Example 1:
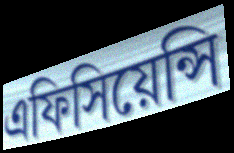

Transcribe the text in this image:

এফিসিয়েন্সি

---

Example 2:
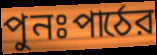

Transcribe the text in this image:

পুনঃপাঠের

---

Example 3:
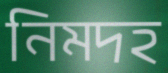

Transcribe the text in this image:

নিমদহ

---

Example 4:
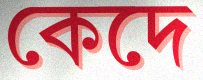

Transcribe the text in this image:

কেদে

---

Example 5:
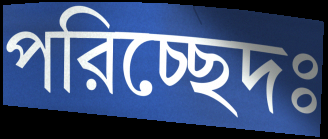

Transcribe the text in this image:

পরিচ্ছেদঃ